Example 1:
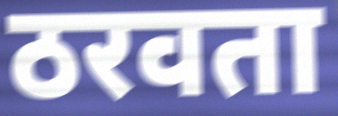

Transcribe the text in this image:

ठरवता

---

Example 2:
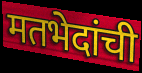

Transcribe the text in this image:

मतभेदांची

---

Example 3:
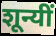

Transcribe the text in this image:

शून्यीं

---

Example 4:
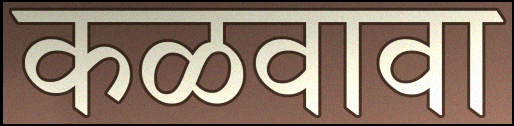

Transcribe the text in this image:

कळवावा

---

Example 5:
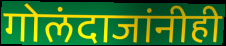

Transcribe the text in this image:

गोलंदाजांनीही